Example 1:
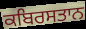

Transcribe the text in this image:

ਕਬਿਰਸਤਾਨ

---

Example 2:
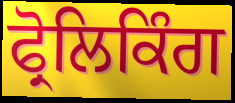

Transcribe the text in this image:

ਫ੍ਰੋਲਿਕਿੰਗ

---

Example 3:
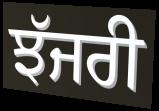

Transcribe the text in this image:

ਝੱਜਰੀ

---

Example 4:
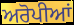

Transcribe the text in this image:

ਅਰੋਪੀਆਂ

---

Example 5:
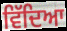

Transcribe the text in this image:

ਵਿੱਦਿਆ